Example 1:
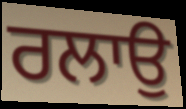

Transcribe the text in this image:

ਰਲਾਉ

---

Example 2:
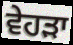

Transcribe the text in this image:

ਵੇਹੜਾ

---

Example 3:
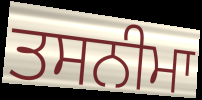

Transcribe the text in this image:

ਤਸਨੀਮਾ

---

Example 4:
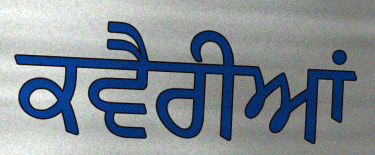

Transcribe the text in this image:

ਕਵੈਰੀਆਂ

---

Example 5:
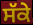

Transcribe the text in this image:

ਸੱਕੇ